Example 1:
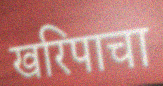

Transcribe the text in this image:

खरिपाचा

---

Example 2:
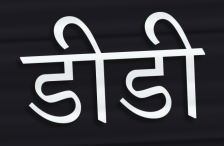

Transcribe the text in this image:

डीडी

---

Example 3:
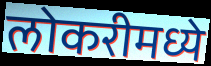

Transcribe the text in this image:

लोकरीमध्ये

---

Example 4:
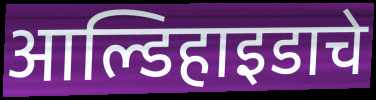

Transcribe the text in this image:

आल्डिहाइडाचे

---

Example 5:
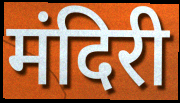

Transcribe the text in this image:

मंदिरी